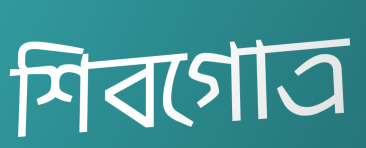
শিবগোত্র